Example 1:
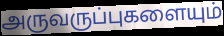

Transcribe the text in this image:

அருவருப்புகளையும்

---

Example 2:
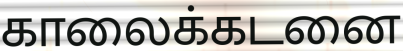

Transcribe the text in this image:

காலைக்கடனை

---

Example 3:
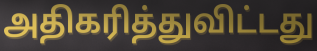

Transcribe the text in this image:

அதிகரித்துவிட்டது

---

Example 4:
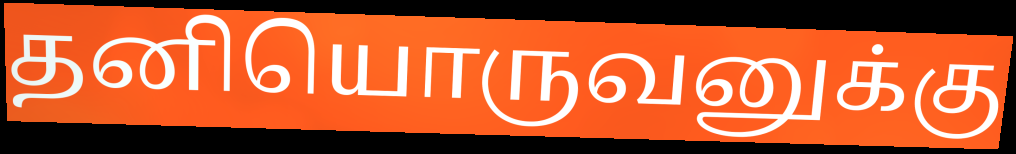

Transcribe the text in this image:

தனியொருவனுக்கு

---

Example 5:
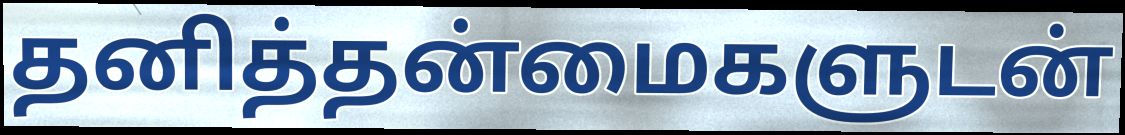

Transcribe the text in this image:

தனித்தன்மைகளுடன்